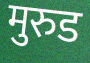
मुरुड